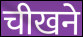
चीखने